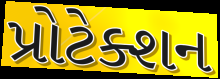
પ્રોટેક્શન